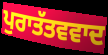
ਪੁਰਾਤੱਤਵਵਾਦ